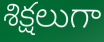
శిక్షలుగా